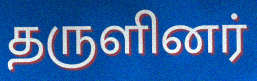
தருளினர்